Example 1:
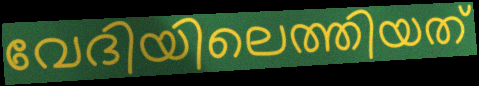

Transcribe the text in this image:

വേദിയിലെത്തിയത്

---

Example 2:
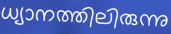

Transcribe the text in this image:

ധ്യാനത്തിലിരുന്നു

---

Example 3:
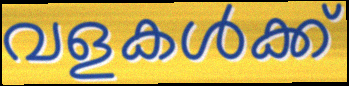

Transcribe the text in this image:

വളകൾക്ക്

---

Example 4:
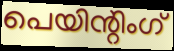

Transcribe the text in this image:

പെയിന്റിംഗ്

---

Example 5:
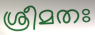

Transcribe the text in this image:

ശ്രീമതഃ